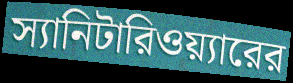
স্যানিটারিওয়্যারের